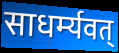
साधर्म्यवत्